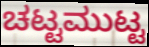
ಚಟ್ಟಮುಟ್ಟ